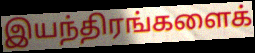
இயந்திரங்களைக்